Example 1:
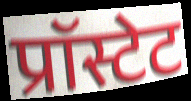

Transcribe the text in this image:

प्रॉस्टेट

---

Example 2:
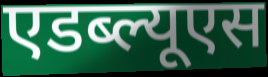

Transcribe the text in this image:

एडब्ल्यूएस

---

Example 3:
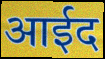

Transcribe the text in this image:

आईद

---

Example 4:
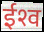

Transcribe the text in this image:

ईश्व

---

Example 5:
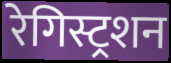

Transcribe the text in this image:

रेगिस्ट्रशन